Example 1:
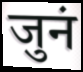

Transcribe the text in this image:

जुनं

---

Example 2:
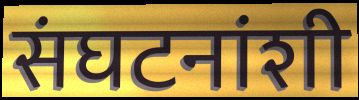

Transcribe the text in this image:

संघटनांशी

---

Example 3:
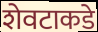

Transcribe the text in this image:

शेवटाकडे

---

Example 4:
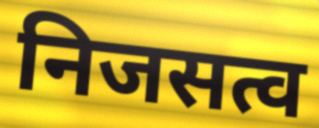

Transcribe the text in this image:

निजसत्व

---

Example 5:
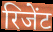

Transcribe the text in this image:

रिजेंट